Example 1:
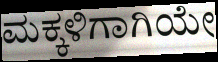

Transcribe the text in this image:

ಮಕ್ಕಳಿಗಾಗಿಯೇ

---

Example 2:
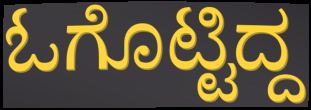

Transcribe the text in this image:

ಓಗೊಟ್ಟಿದ್ದ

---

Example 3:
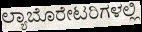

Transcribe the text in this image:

ಲ್ಯಾಬೊರೇಟರಿಗಳಲ್ಲಿ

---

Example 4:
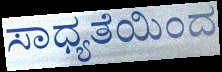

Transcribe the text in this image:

ಸಾಧ್ಯತೆಯಿಂದ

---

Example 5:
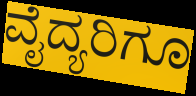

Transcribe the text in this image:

ವೈದ್ಯರಿಗೂ